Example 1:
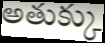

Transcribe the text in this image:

అతుక్కు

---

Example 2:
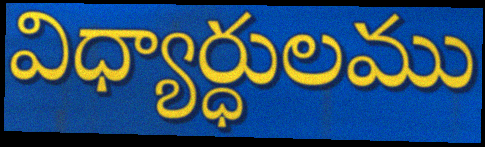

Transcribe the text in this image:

విధ్యార్ధులము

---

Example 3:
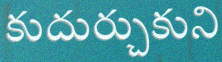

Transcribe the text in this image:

కుదుర్చుకుని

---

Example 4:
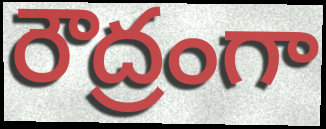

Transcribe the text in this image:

రౌద్రంగా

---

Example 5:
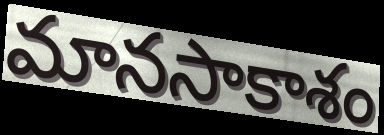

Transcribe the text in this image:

మానసాకాశం